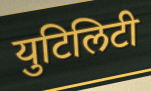
युटिलिटी